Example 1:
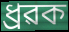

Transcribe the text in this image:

ধ্ৰৱক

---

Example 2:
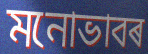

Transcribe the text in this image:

মনোভাবৰ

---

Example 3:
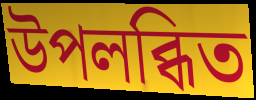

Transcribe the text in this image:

উপলব্ধিত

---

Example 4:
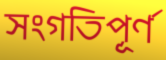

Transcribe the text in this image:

সংগতিপূৰ্ণ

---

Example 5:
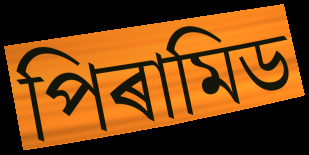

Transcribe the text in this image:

পিৰামিড